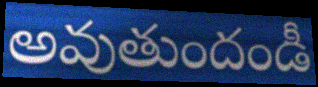
అవుతుందండీ